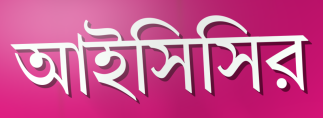
আইসিসির